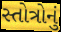
સ્તોત્રોનું